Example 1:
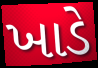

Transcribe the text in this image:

ખાડે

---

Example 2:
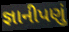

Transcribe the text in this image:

જ્ઞાનીપણું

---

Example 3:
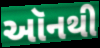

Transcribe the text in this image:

ઑનથી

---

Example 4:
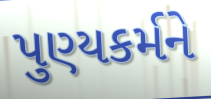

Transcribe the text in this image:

પુણ્યકર્મને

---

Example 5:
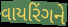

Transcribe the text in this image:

વાયરિંગને